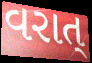
વરાત્